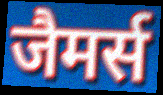
जैमर्स